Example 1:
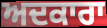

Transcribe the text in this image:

ਅਦਕਾਰਾ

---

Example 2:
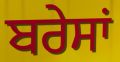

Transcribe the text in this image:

ਬਰੇਸਾਂ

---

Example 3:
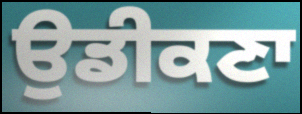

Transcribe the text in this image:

ਉਡੀਕਣਾ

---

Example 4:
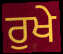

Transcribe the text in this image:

ਰੁਖੇ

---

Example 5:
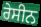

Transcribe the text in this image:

ਰੇਸੀਨ